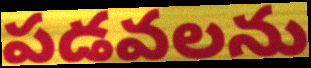
పడవలను